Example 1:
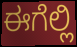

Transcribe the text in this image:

ಈಗೆಲ್ಲಿ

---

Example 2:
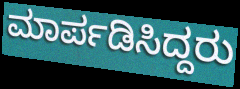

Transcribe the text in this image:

ಮಾರ್ಪಡಿಸಿದ್ದರು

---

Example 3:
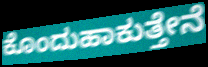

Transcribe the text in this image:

ಕೊಂದುಹಾಕುತ್ತೇನೆ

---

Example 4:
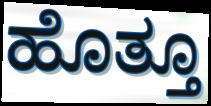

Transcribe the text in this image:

ಹೊತ್ತೂ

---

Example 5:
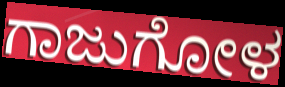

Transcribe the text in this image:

ಗಾಜುಗೋಳ